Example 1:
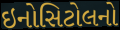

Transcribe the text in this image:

ઇનોસિટોલનો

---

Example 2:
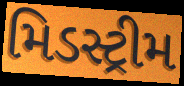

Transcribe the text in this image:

મિડસ્ટ્રીમ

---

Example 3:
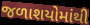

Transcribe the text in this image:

જળાશયોમાંથી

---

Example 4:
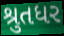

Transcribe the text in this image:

શ્રુતધર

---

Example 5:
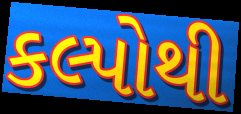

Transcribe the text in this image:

કલ્પોથી